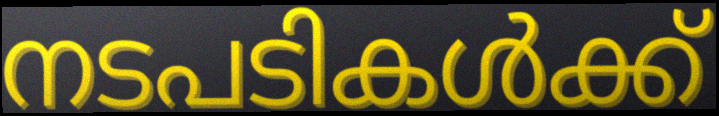
നടപടികൾക്ക്